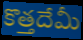
కొత్తదేమీ